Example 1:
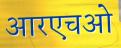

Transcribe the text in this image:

आरएचओ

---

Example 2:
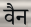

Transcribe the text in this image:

वैन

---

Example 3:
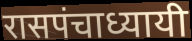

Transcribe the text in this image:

रासपंचाध्यायी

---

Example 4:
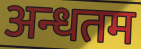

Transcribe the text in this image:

अन्धतम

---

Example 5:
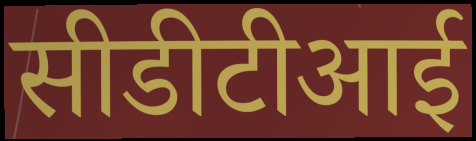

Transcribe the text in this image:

सीडीटीआई